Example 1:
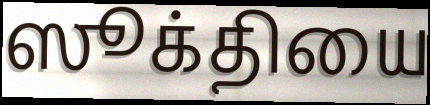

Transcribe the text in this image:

ஸூக்தியை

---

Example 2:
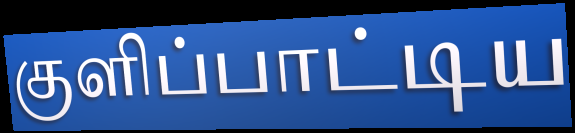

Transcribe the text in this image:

குளிப்பாட்டிய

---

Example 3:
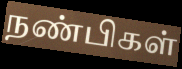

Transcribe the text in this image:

நண்பிகள்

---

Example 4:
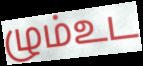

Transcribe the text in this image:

ழும்உட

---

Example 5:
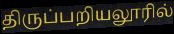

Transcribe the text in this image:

திருப்பறியலூரில்